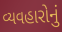
વ્યવહારોનું